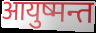
आयुष्मन्त